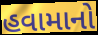
હવામાનો